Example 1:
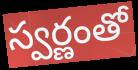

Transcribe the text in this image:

స్వర్ణంతో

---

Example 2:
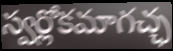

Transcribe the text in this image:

స్వర్లోకమాగచ్ఛ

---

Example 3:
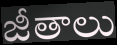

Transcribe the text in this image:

జీతాలు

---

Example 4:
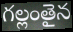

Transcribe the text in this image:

గల్లంతైన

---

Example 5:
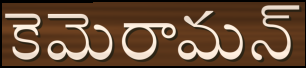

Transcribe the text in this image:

కెమెరామన్